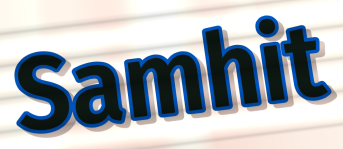
Samhit